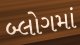
બ્લોગમાં